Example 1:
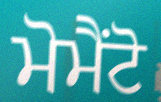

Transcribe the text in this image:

ਮੋਮੈਂਟੋ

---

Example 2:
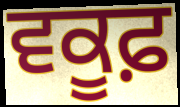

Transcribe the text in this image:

ਵਕੂਫ਼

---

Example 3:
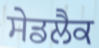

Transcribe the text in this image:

ਸੇਡਲੈਕ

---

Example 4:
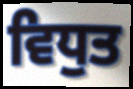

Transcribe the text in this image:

ਵਿਧੁਤ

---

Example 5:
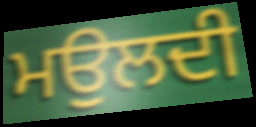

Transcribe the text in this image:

ਮਉਲਦੀ